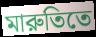
মারুতিতে